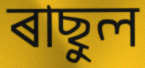
ৰাছুল